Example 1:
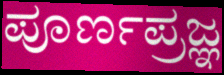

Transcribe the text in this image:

ಪೂರ್ಣಪ್ರಜ್ಞ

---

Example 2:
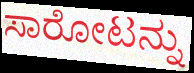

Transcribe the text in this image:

ಸಾರೋಟನ್ನು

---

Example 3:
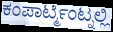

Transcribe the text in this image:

ಕಂಪಾರ್ಟ್ಮೆಂಟ್ನಲ್ಲಿ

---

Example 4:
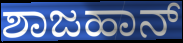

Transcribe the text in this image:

ಶಾಜಹಾನ್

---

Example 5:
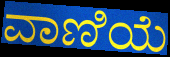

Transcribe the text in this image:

ವಾಣಿಯೆ